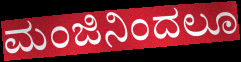
ಮಂಜಿನಿಂದಲೂ